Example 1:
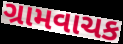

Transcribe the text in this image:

ગ્રામવાચક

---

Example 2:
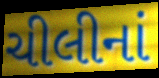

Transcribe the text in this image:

ચીલીનાં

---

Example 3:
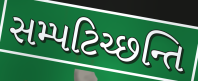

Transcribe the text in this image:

સમ્પટિચ્છન્તિ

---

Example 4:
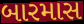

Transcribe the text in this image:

બારમાસ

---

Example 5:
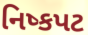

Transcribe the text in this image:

નિષ્કપટ